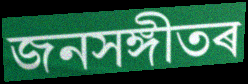
জনসঙ্গীতৰ